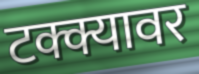
टक्क्यावर